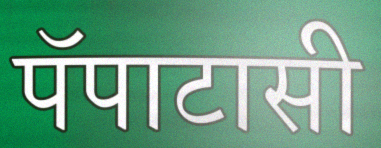
पॅपाटासी